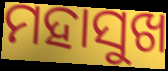
ମହାସୁଖ